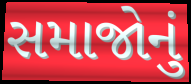
સમાજોનું